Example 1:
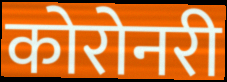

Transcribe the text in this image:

कोरोनरी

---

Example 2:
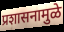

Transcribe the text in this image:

प्रशासनामुळे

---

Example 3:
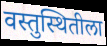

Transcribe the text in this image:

वस्तुस्थितीला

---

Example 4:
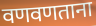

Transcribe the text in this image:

वणवणताना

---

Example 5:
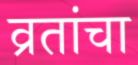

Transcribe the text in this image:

व्रतांचा